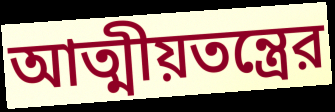
আত্মীয়তন্ত্রের